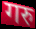
गरु